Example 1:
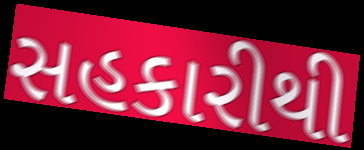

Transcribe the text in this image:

સહકારીથી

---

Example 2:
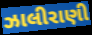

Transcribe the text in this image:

ઝાલીરાણી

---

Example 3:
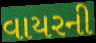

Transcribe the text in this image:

વાયરની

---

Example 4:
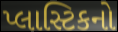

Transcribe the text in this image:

પ્લાસ્ટિકનો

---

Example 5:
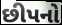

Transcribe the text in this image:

છીપનો